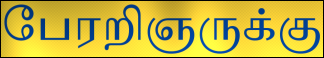
பேரறிஞருக்கு